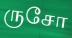
ருசோ